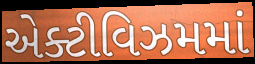
એક્ટીવિઝમમાં